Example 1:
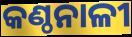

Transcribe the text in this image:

କଣ୍ଠନାଳୀ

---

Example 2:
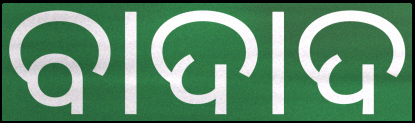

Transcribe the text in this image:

ବାଦାଦ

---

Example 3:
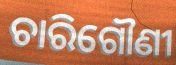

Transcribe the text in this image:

ଚାରିଗୌଣୀ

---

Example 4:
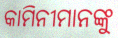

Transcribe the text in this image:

କାମିନୀମାନଙ୍କୁ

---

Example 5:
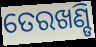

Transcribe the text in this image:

ତେରଖଣ୍ଡି